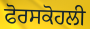
ਫੋਰਸਕੋਹਲੀ